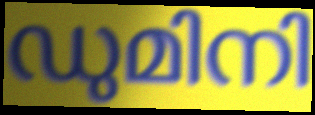
ഡുമിനി